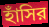
হাঁসির